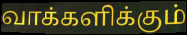
வாக்களிக்கும்